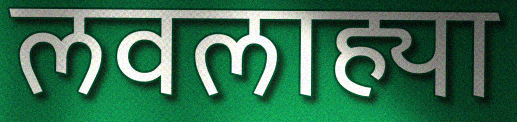
लवलाह्या